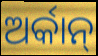
ଅର୍କାନ୍